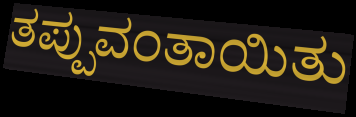
ತಪ್ಪುವಂತಾಯಿತು